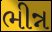
ભીન્ન